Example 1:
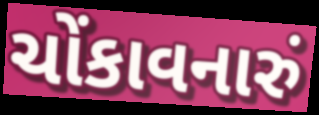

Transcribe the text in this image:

ચોંકાવનારું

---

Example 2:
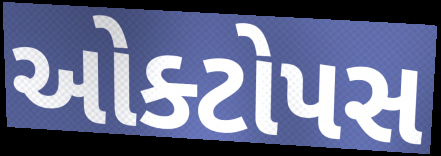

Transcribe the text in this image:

ઓક્ટોપસ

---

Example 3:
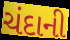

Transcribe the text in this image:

ચંદાની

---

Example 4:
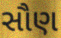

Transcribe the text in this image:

સૌણ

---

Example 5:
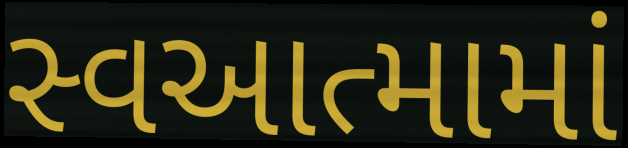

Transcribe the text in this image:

સ્વઆત્મામાં